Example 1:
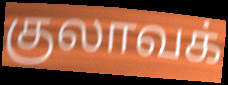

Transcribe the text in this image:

குலாவக்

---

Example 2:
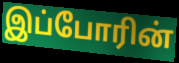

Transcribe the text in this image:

இப்போரின்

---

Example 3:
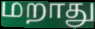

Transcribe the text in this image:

மறாது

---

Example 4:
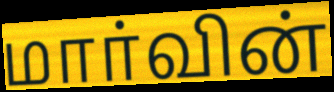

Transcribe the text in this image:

மார்வின்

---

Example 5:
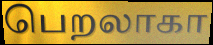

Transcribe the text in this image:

பெறலாகா